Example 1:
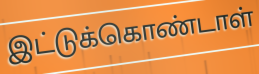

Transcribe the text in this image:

இட்டுக்கொண்டாள்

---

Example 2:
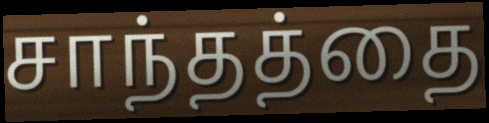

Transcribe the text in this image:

சாந்தத்தை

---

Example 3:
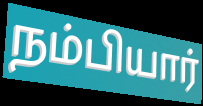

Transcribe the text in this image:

நம்பியார்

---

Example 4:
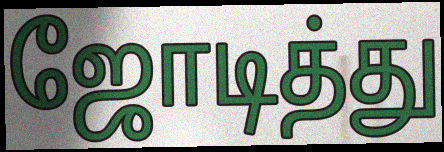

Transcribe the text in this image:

ஜோடித்து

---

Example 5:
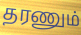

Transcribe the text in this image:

தரணும்